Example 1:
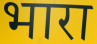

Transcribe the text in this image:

भारा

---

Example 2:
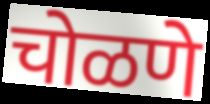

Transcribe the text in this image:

चोळणे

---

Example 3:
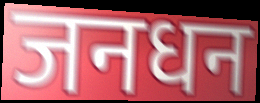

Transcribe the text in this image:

जनधन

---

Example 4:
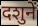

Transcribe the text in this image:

दशुनें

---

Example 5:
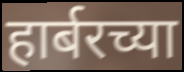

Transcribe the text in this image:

हार्बरच्या